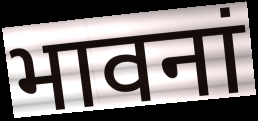
भावनां